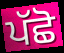
ਪੱਛੋ